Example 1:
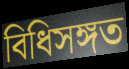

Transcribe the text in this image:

বিধিসঙ্গত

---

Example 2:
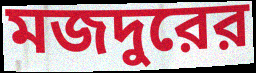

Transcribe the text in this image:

মজদুরের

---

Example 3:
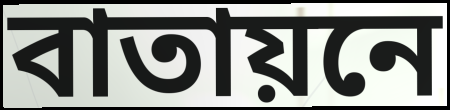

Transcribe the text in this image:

বাতায়নে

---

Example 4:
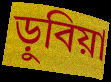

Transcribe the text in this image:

ড়ুবিয়া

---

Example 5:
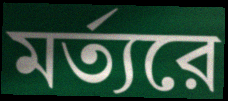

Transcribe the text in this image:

মর্ত্যরে